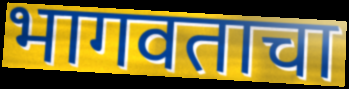
भागवताचा